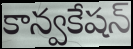
కాన్వకేషన్